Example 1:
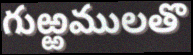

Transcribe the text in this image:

గుఱ్ఱములతొ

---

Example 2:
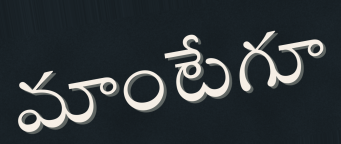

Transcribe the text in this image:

మాంటేగూ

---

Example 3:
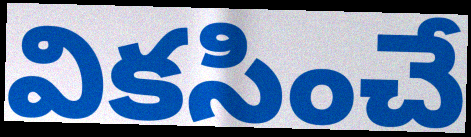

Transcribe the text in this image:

వికసించే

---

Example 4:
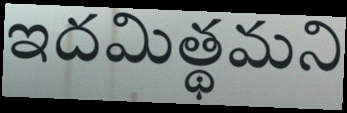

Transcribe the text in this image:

ఇదమిత్థమని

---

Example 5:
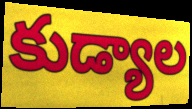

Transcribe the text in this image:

కుడ్యాల